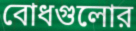
বোধগুলোর